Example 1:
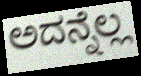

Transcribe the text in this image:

ಅದನ್ನೆಲ್ಲ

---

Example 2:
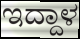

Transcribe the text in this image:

ಇದ್ದಾಳ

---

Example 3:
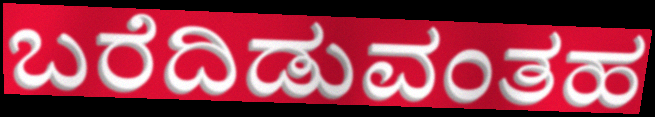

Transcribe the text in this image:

ಬರೆದಿಡುವಂತಹ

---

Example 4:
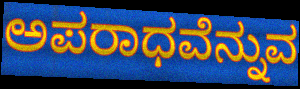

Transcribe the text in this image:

ಅಪರಾಧವೆನ್ನುವ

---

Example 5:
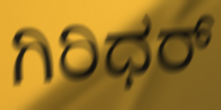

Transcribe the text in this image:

ಗಿರಿಧರ್